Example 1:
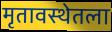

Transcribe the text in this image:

मृतावस्थेतला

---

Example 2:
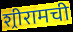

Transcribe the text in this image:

श्रीरामची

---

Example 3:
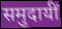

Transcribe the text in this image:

समुदायीं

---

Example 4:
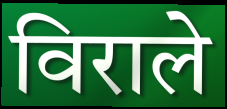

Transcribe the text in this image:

विराले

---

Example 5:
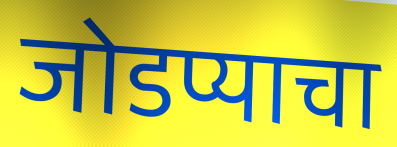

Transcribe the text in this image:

जोडप्याचा